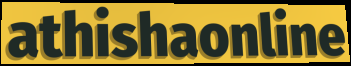
athishaonline